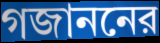
গজাননের